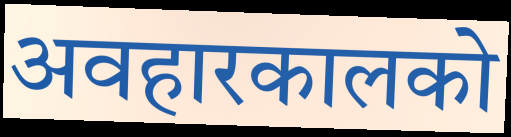
अवहारकालको